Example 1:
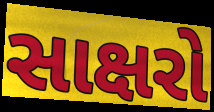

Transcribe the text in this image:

સાક્ષરો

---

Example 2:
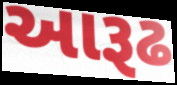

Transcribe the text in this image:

આરૂઢ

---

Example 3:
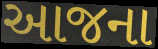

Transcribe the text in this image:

આજના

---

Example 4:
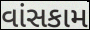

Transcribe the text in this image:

વાંસકામ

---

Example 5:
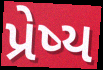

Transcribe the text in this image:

પ્રેષ્ય